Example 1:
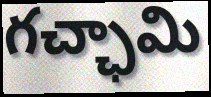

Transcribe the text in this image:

గచ్ఛామి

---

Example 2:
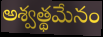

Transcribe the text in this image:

అశ్వత్థమేనం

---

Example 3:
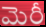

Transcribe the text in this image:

మెరీ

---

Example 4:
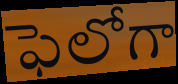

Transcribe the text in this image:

ఫెలోగా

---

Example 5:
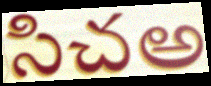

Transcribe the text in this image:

సిచఅ